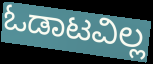
ಓಡಾಟವಿಲ್ಲ